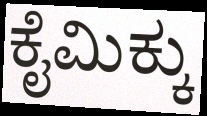
ಕೈಮಿಕ್ಕು